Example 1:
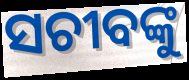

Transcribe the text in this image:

ସଚୀବଙ୍କୁ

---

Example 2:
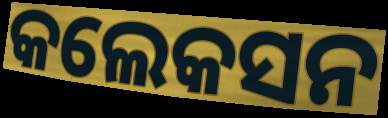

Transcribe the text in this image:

କଲେକସନ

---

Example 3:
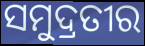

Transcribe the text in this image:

ସମୁଦ୍ରତୀର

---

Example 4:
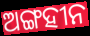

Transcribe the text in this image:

ଅଙ୍ଗହୀନ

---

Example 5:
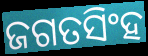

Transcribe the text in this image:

ଜଗତସିଂହ